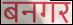
बनगर